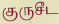
குருசீட